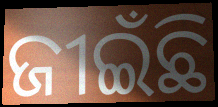
ଜୀଇଁଛି